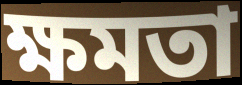
ক্ষমতা